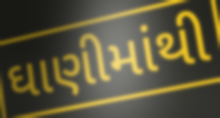
ઘાણીમાંથી